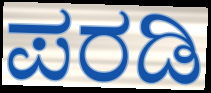
ಪರಡಿ